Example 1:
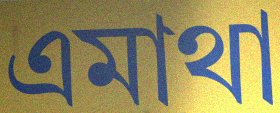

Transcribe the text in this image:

এমাথা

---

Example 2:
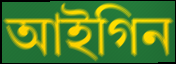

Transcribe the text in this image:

আইগিন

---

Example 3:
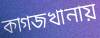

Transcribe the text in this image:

কাগজখানায়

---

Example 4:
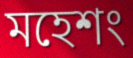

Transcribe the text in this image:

মহেশং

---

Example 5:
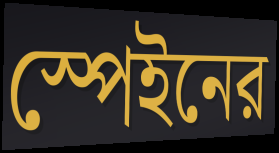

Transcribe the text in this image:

স্পেইনের